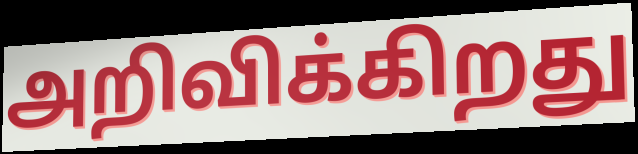
அறிவிக்கிறது